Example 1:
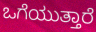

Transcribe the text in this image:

ಒಗೆಯುತ್ತಾರೆ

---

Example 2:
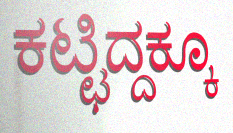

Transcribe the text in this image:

ಕಟ್ಟಿದ್ದಕ್ಕೂ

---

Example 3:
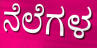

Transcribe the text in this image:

ನೆಲೆಗಳ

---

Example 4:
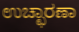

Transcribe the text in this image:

ಉಚ್ಛಾರಣಾ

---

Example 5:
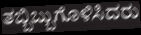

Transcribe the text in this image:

ತಬ್ಬಿಬ್ಬುಗೊಳಿಸಿದರು